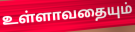
உள்ளாவதையும்